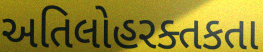
અતિલોહરક્તકતા